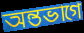
অন্তভাগে